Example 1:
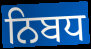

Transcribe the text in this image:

ਨਿਬਧ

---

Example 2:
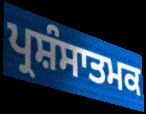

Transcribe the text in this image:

ਪ੍ਰਸ਼ੰਸਾਤਮਕ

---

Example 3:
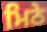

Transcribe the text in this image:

ਮਿਠੇ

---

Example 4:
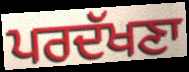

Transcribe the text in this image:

ਪਰਦੱਖਣਾ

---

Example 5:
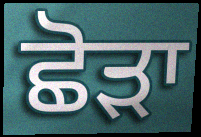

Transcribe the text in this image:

ਛੋੜਾ